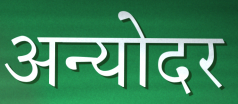
अन्योदर